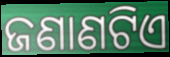
ଜଣାଣଟିଏ